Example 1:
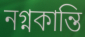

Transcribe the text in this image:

নগ্নকান্তি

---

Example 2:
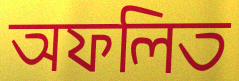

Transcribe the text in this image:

অফলিত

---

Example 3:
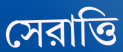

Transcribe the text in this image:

সেরাত্তি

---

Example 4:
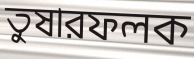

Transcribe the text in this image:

তুষারফলক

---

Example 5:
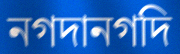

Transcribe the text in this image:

নগদানগদি